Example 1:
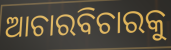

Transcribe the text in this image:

ଆଚାରବିଚାରକୁ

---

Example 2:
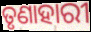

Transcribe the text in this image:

ତୃଣାହାରୀ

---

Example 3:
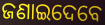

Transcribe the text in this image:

ଜଣାଇଦେବେ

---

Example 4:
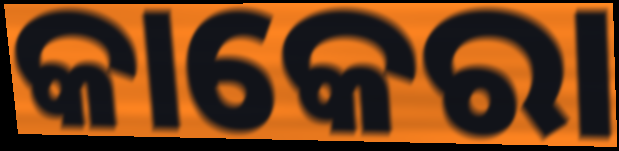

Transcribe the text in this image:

କାକେରା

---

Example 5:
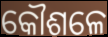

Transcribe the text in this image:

କୌଶଳେ